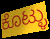
ಕೊಟ್ಳು